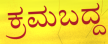
ಕ್ರಮಬದ್ದ